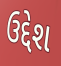
ઉદ્દેશ